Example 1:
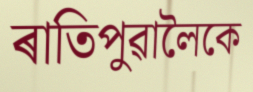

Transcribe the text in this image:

ৰাতিপুৱালৈকে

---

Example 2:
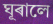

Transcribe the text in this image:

ঘূৰালে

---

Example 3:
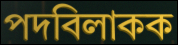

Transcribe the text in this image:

পদবিলাকক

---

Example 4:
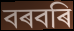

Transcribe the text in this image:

বৰবৰি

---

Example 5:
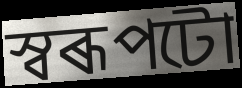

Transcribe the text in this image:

স্বৰূপটো